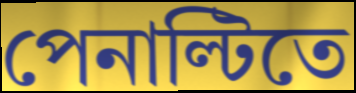
পেনাল্টিতে